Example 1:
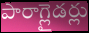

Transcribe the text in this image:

పారాగ్లైడర్లు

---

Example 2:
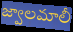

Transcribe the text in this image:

జ్వాలమాలీ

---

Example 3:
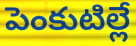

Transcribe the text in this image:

పెంకుటిల్లే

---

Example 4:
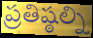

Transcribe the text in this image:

ప్రతిష్ఠల్ని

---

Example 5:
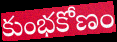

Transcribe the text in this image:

కుంభకోణం